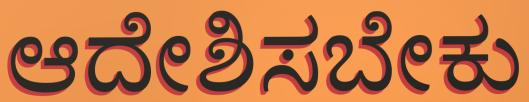
ಆದೇಶಿಸಬೇಕು